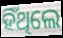
ହିଁଥିଲେ